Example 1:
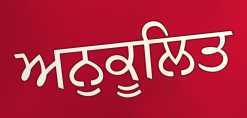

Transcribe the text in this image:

ਅਨੁਕੂਲਿਤ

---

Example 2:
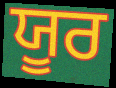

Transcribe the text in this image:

ਯੂਰ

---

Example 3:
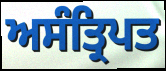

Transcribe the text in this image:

ਅਸੰਤ੍ਰਿਪਤ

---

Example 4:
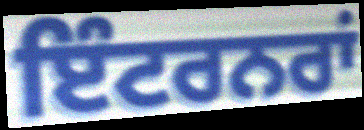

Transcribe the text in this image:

ਇੰਟਰਨਰਾਂ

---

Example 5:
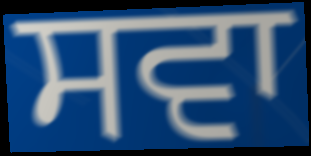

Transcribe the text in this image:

ਸਵਾ